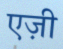
एज़ी